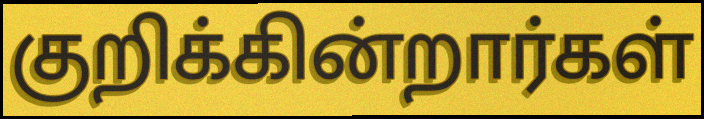
குறிக்கின்றார்கள்